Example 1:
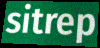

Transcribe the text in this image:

sitrep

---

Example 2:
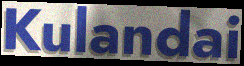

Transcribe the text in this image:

Kulandai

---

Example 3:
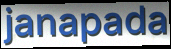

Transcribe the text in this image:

janapada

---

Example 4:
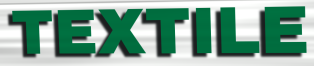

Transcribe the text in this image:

TEXTILE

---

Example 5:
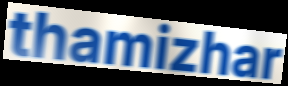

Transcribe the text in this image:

thamizhar